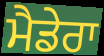
ਮੈਡੇਰਾ